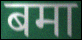
बमा